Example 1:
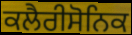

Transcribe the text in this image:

ਕਲੈਰੀਸੋਨਿਕ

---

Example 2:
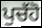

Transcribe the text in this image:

ਪੁਚੱਹੋ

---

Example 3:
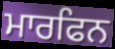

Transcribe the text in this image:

ਮਾਰਫਿਨ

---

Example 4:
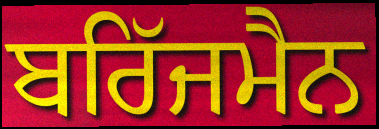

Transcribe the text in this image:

ਬਰਿੱਜਮੈਨ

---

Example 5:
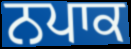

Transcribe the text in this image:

ਨਪਾਕ